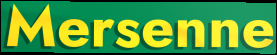
Mersenne